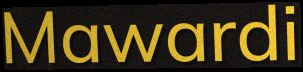
Mawardi